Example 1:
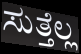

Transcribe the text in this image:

ಸುತ್ತೆಲ್ಲ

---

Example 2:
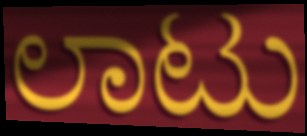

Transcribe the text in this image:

ಲಾಟು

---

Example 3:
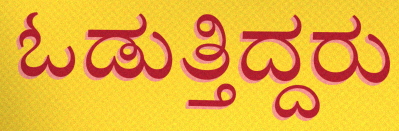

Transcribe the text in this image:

ಓಡುತ್ತಿದ್ದರು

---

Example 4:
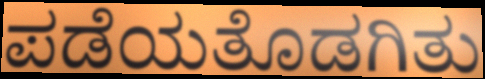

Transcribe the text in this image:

ಪಡೆಯತೊಡಗಿತು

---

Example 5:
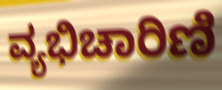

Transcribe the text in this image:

ವ್ಯಭಿಚಾರಿಣಿ